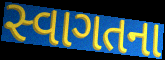
સ્વાગતના